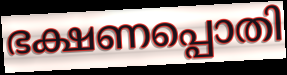
ഭക്ഷണപ്പൊതി